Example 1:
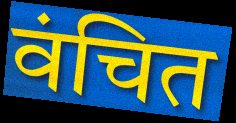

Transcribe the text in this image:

वंचित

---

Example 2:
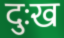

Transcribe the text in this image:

दुःख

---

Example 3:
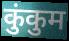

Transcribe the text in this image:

कुंकुम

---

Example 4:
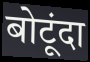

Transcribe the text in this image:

बोटूंदा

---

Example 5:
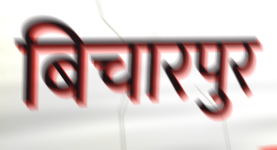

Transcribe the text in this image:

बिचारपुर